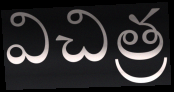
విచిత్ర